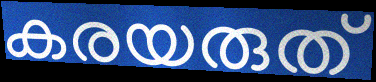
കരയരുത്